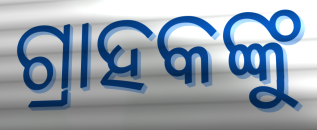
ଗ୍ରାହକଙ୍କୁ